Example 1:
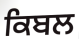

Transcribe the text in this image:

ਕਿਬਲ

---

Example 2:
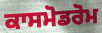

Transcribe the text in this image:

ਕਾਸਮੋਡਰੋਮ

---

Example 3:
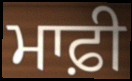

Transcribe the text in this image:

ਮਾਫ਼ੀ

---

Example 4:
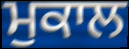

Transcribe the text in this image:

ਮੁਕਾਲ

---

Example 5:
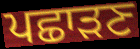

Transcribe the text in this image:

ਪਛਾੜਣ